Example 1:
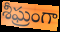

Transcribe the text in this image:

శీఘ్రంగా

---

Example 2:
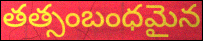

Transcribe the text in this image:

తత్సంబంధమైన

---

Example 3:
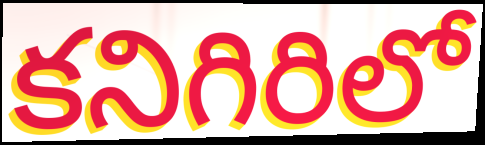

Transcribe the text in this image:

కనిగిరిలో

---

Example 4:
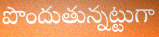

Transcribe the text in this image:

పొందుతున్నట్టుగా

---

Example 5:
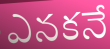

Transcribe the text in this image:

ఎనకనే